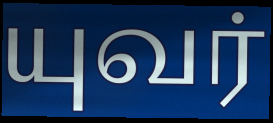
யுவர்